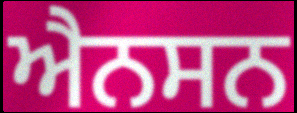
ਐਨਸਨ